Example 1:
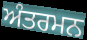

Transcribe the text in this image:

ਅੰਤਰਮਨ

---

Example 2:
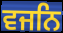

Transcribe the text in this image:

ਵਜਨਿ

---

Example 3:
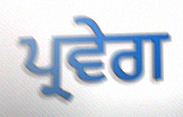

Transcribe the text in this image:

ਪ੍ਰਵੇਗ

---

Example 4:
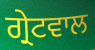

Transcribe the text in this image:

ਗ੍ਰੇਟਵਾਲ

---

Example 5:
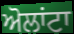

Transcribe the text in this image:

ਅੋਲਾਂਟਾ